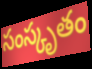
సంస్కృతం